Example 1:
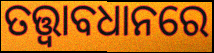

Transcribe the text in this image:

ତତ୍ତ୍ୱାବଧାନରେ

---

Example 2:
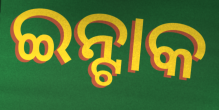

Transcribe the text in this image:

ଇନ୍ଟାକ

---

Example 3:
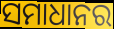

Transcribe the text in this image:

ସମାଧାନର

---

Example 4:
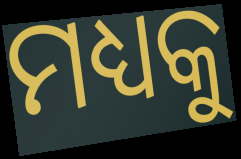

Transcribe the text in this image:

ମଧ୍ୟକୁ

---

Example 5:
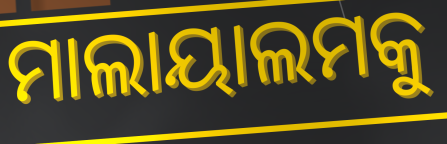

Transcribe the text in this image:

ମାଲାୟାଲମକୁ